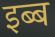
इब्ब